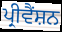
ਪ੍ਰੀਵੈਂਸ਼ਨ